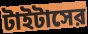
টাইটাসের